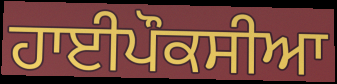
ਹਾਈਪੌਕਸੀਆ